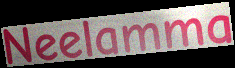
Neelamma